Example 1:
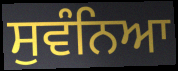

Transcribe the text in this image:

ਸੁਵੰਨਿਆ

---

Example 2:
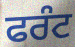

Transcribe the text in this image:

ਫਰੰਟ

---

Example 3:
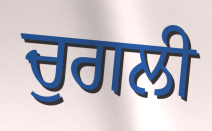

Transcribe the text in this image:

ਚੁਗਲੀ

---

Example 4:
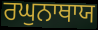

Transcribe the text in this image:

ਰਘੁਨਾਥਾਯ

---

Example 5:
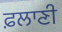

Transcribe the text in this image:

ਫ਼ਲਾਣੀ